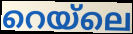
റെയ്ലെ